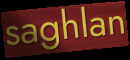
saghlan